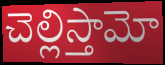
చెల్లిస్తామో